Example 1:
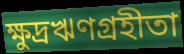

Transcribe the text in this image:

ক্ষুদ্রঋণগ্রহীতা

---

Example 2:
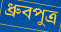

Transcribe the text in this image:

ধ্রুবপুত্র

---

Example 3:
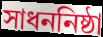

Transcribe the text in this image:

সাধননিষ্ঠা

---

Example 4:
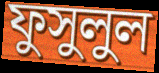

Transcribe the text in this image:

ফুসুলুল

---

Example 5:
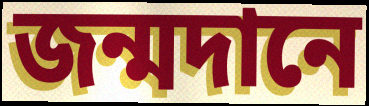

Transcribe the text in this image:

জন্মদানে